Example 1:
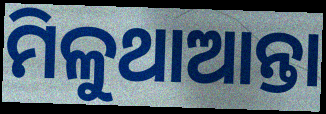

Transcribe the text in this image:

ମିଳୁଥାଆନ୍ତା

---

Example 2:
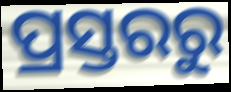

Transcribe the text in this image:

ପ୍ରସ୍ତରରୁ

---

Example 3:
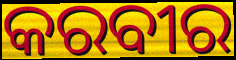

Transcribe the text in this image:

କରବୀର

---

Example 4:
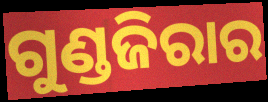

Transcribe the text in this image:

ଗୁଣ୍ଡଜିରାର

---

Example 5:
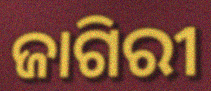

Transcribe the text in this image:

ଜାଗିରୀ